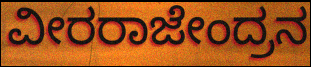
ವೀರರಾಜೇಂದ್ರನ